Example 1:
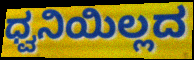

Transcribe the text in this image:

ಧ್ವನಿಯಿಲ್ಲದ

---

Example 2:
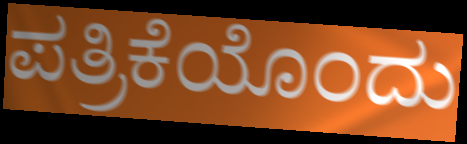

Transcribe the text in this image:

ಪತ್ರಿಕೆಯೊಂದು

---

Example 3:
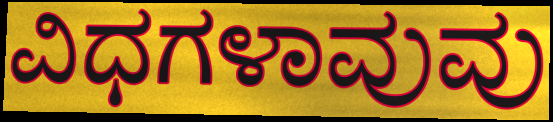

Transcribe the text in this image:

ವಿಧಗಳಾವುವು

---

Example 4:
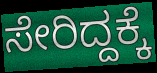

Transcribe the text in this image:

ಸೇರಿದ್ದಕ್ಕೆ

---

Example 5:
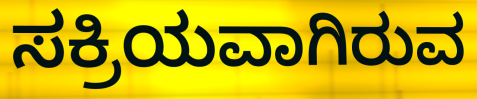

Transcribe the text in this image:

ಸಕ್ರಿಯವಾಗಿರುವ